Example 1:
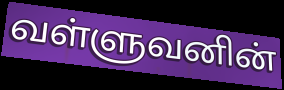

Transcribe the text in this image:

வள்ளுவனின்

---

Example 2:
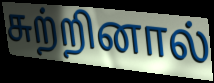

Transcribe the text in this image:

சுற்றினால்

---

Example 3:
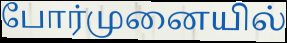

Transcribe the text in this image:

போர்முனையில்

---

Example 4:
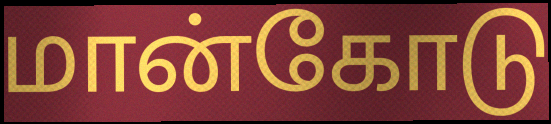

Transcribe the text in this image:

மான்கோடு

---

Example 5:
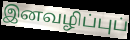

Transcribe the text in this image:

இனவழிப்புப்